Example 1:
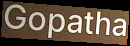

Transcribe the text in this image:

Gopatha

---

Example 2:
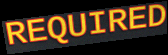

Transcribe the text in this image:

REQUIRED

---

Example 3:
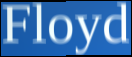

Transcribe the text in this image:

Floyd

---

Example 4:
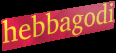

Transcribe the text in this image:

hebbagodi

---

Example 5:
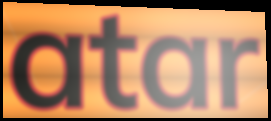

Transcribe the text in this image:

atar